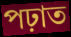
পঢ়াত